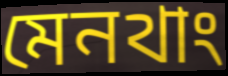
মেনথাং